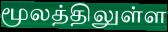
மூலத்திலுள்ள